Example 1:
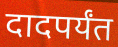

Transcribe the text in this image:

दादपर्यंत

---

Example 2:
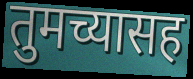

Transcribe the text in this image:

तुमच्यासह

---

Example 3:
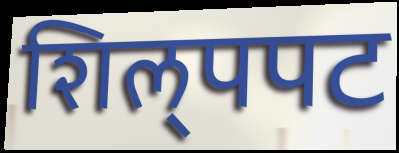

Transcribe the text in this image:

शिल्पपट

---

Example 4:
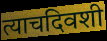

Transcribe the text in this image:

त्याचदिवशी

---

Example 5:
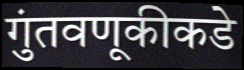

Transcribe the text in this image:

गुंतवणूकीकडे